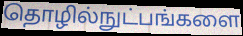
தொழில்நுட்பங்களை